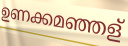
ഉണക്കമഞ്ഞള്